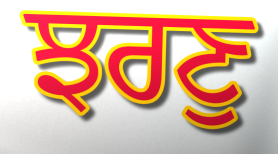
ਝਰਣੁ